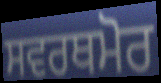
ਸਵਰਥਮੋਰ